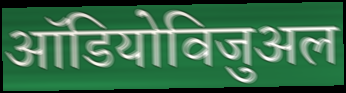
ऑडियोविजुअल